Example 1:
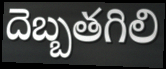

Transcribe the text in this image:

దెబ్బతగిలి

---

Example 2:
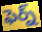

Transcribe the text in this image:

ఫెర్న్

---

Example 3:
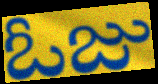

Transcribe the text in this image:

ఓజు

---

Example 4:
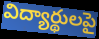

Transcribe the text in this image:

విద్యార్థులపై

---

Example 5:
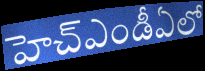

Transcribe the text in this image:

హెచ్ఎండీఏలో